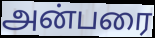
அன்பரை